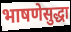
भाषणेसुद्धा